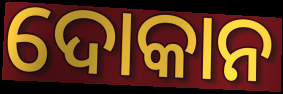
ଦୋକାନ